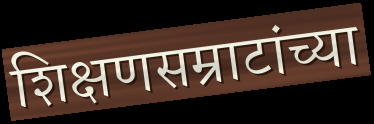
शिक्षणसम्राटांच्या